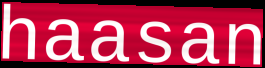
haasan